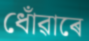
ধোঁৱাৰে